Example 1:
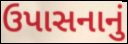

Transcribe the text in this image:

ઉપાસનાનું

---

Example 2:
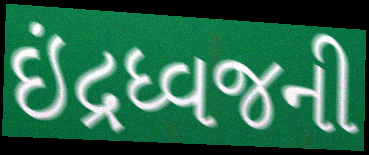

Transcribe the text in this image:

ઇંદ્રધ્વજની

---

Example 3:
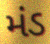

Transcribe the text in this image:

મંડ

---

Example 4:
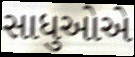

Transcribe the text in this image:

સાધુઓએ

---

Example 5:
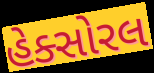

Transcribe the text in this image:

હેક્સોરલ